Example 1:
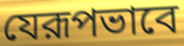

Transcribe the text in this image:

যেরূপভাবে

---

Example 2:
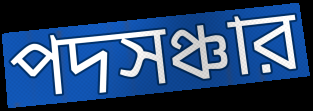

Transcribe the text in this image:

পদসঞ্চার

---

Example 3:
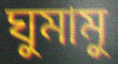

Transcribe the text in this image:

ঘুমামু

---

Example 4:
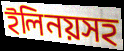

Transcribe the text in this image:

ইলিনয়সহ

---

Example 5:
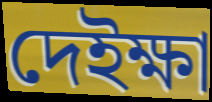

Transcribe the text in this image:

দেইক্ষা